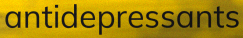
antidepressants